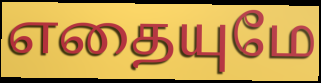
எதையுமே